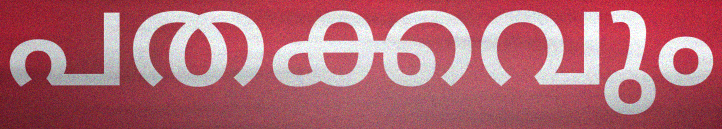
പതക്കവും